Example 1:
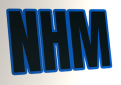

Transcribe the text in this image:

NHM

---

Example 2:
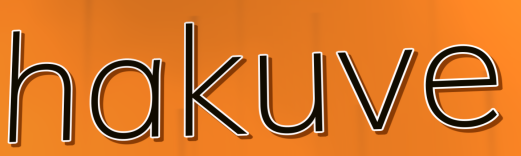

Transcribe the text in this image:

hakuve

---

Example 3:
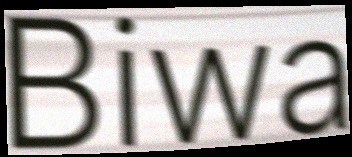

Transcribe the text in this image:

Biwa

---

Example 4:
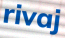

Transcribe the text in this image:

rivaj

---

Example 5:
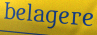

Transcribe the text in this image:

belagere